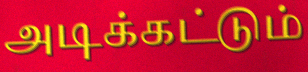
அடிக்கட்டும்